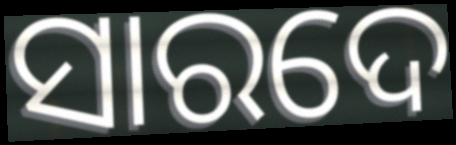
ସାରଦେ